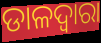
ଡାଳଦ୍ୱାରା